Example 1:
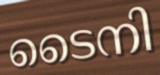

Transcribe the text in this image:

ടൈനി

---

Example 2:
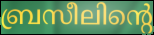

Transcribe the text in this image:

ബ്രസീലിന്റെ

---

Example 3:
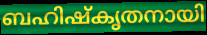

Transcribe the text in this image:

ബഹിഷ്കൃതനായി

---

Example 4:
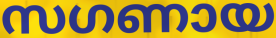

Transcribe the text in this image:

സഗണായ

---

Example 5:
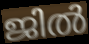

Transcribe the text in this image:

ജിൽ